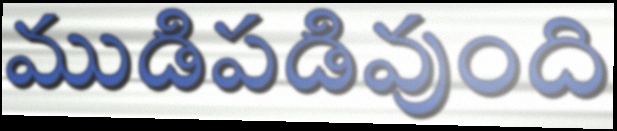
ముడిపడివుంది